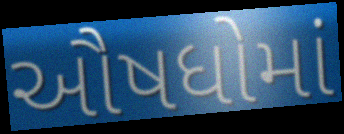
ઔષધોમાં